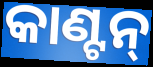
କାଣ୍ଟନ୍